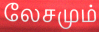
லேசமும்